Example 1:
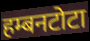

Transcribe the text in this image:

हम्बनटोटा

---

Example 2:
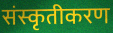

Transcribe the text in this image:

संस्कृतीकरण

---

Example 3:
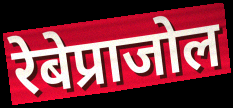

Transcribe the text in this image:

रेबेप्राजोल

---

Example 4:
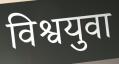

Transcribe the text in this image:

विश्वयुवा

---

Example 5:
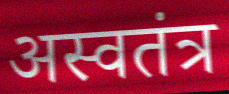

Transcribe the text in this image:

अस्वतंत्र